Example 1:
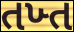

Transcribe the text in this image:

તખ્ત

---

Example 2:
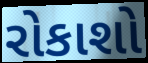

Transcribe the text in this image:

રોકાશો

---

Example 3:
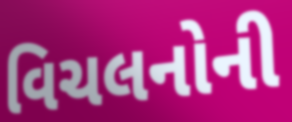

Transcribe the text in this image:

વિચલનોની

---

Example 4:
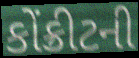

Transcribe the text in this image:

કોંક્રીટની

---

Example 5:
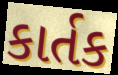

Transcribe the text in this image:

કાર્તક